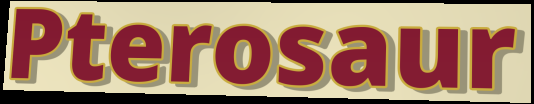
Pterosaur